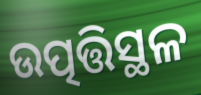
ଉତ୍ପତ୍ତିସ୍ଥଳ